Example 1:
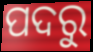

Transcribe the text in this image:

ପଦରୁ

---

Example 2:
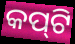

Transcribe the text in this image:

କପ୍‌ଟି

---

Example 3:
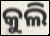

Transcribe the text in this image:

କୁଲି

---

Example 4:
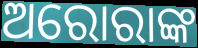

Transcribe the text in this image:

ଅରୋରାଙ୍କ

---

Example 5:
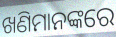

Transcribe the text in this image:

ଖଣିମାନଙ୍କରେ